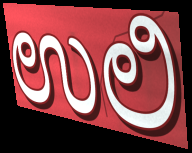
ಉಲಿ